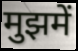
मुझमें